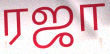
ரஜா